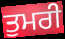
ਤੁਮਰੀ